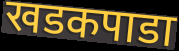
खडकपाडा